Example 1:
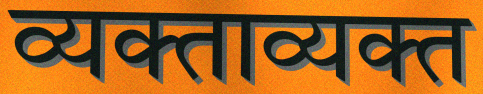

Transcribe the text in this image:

व्यक्ताव्यक्त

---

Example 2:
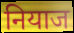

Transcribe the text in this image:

नियाज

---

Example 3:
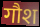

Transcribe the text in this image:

गौश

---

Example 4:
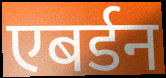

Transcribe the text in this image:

एबर्डन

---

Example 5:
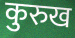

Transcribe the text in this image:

कुरुख